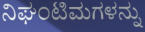
ನಿಘಂಟಿಮಗಳನ್ನು